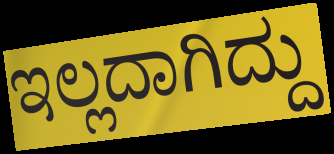
ಇಲ್ಲದಾಗಿದ್ದು